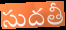
సుదతీ